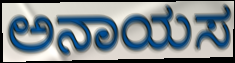
ಅನಾಯಸ